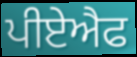
ਪੀਏਐਫ